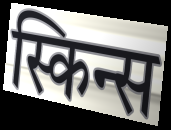
स्किन्स